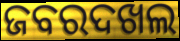
ଜବରଦଖଲ